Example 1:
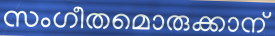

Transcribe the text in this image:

സംഗീതമൊരുക്കാന്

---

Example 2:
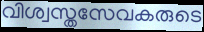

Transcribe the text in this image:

വിശ്വസ്തസേവകരുടെ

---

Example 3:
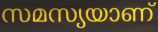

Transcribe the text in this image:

സമസ്യയാണ്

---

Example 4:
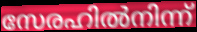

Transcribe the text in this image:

സേരഹിൽനിന്ന്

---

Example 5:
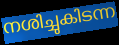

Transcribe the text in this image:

നശിച്ചുകിടന്ന